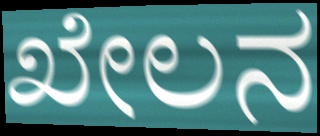
ಖೇಲನ